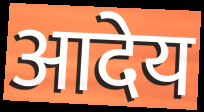
आदेय